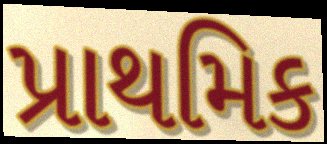
પ્રાથમિક